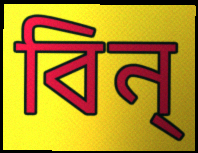
বিন্